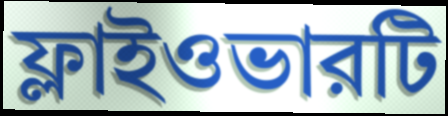
ফ্লাইওভারটি